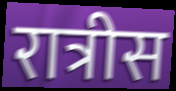
रात्रीस